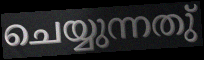
ചെയ്യുന്നതു്